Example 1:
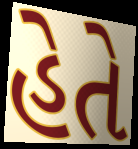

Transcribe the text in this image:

હેતે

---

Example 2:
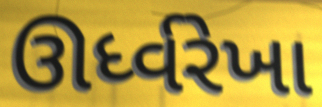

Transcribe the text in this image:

ઊર્ધ્વરેખા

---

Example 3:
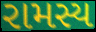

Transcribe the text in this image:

રામસ્ય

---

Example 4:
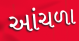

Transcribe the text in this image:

આંચળા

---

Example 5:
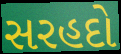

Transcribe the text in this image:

સરહદો